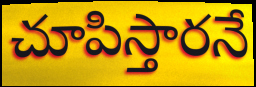
చూపిస్తారనే